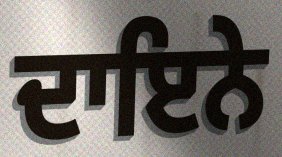
ਦਾਇਨੇ